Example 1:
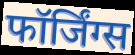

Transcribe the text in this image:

फॉर्जिंग्स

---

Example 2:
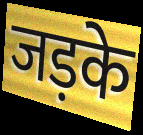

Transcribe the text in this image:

जड़के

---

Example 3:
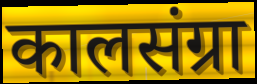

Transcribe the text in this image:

कालसंग्रा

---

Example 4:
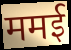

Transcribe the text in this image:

ममई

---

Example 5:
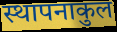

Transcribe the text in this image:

स्थापनाकुल